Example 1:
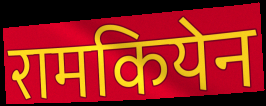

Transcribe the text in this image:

रामकियेन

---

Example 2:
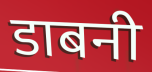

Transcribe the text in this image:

डाबनी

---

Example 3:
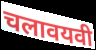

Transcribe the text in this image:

चलावयवी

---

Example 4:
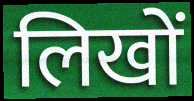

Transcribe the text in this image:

लिखों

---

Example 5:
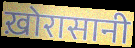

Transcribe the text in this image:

ख़ोरासानी